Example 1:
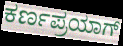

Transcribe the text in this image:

ಕರ್ಣಪ್ರಯಾಗ್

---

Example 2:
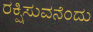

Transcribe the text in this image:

ರಕ್ಷಿಸುವನೆಂದು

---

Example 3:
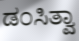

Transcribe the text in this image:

ಡಂಸಿತ್ವಾ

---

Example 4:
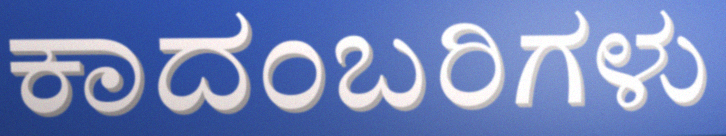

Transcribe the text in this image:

ಕಾದಂಬರಿಗಳು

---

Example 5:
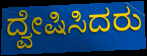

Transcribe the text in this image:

ದ್ವೇಷಿಸಿದರು